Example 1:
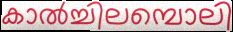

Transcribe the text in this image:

കാൽച്ചിലമ്പൊലി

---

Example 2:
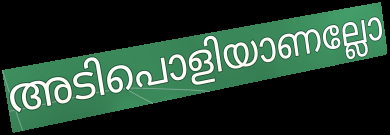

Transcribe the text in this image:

അടിപൊളിയാണല്ലോ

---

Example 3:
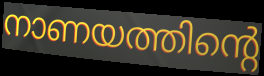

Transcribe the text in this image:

നാണയത്തിന്റെ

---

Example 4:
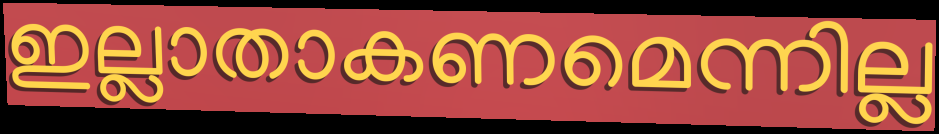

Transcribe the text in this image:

ഇല്ലാതാകണമെന്നില്ല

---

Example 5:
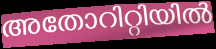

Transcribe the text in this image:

അതോറിറ്റിയിൽ